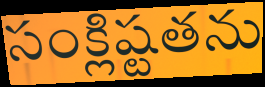
సంక్లిష్టతను